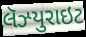
લૅઝ્યુરાઇટ